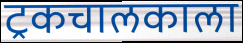
ट्रकचालकाला